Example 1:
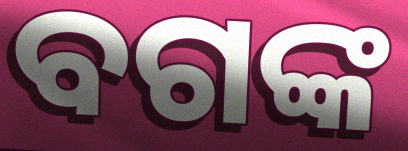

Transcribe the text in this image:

ବଗଙ୍କ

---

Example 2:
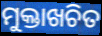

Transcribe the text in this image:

ମୁକ୍ତାଖଚିତ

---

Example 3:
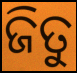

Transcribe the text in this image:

ଜିତୁ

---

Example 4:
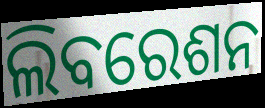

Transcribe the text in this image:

ଲିବରେଶନ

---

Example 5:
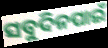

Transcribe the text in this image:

ସବୁଦିନପାଇଁ